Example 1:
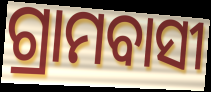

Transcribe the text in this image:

ଗ୍ରାମବାସୀ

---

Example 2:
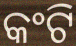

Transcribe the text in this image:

କଂଟି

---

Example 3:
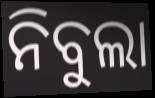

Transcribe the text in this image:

ନିବୁଲା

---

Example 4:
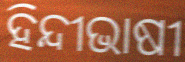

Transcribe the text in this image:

ହିନ୍ଦୀଭାଷୀ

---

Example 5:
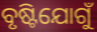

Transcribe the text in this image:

ବୃଷ୍ଟିଯୋଗୁଁ